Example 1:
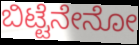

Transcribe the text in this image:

ಬಿಟ್ಟೆನೇನೋ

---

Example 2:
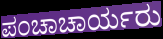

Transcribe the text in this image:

ಪಂಚಾಚಾರ್ಯರು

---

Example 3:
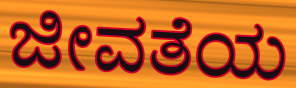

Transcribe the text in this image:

ಜೀವತೆಯ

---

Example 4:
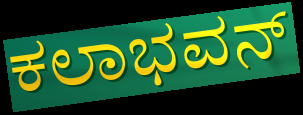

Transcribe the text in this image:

ಕಲಾಭವನ್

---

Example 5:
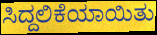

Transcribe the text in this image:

ಸಿದ್ದಲಿಕೆಯಾಯಿತು